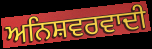
ਅਨਿਸ਼ਵਰਵਾਦੀ